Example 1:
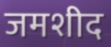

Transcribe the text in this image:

जमशीद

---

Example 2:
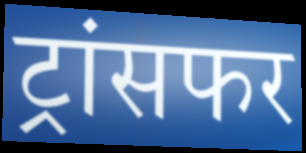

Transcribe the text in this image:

ट्रांसफर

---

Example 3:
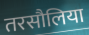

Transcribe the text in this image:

तरसौलिया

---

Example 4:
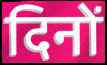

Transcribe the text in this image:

दिनों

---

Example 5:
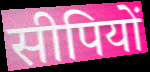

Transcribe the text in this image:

सीपियों